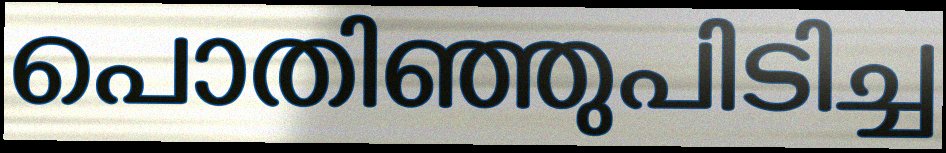
പൊതിഞ്ഞുപിടിച്ച